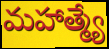
మహాత్మ్యే